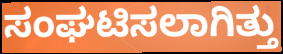
ಸಂಘಟಿಸಲಾಗಿತ್ತು